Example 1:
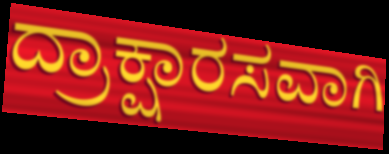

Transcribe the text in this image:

ದ್ರಾಕ್ಷಾರಸವಾಗಿ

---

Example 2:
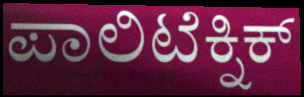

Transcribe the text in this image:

ಪಾಲಿಟೆಕ್ನಿಕ್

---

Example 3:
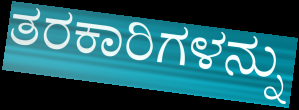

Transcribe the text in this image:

ತರಕಾರಿಗಳನ್ನು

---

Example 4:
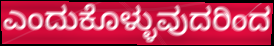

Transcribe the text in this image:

ಎಂದುಕೊಳ್ಳುವುದರಿಂದ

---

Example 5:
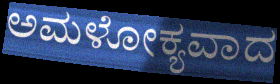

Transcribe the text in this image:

ಅಮಳೋಕ್ಯವಾದ